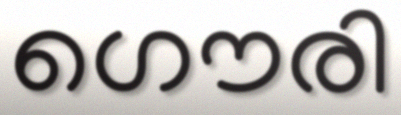
ഗൌരി